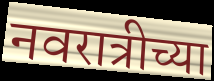
नवरात्रीच्या